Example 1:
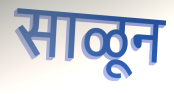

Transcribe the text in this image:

साळून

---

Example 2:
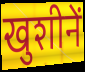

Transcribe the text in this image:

खुशीनें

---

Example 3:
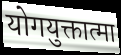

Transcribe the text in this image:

योगयुक्तात्मा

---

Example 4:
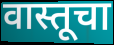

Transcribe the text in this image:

वास्तूचा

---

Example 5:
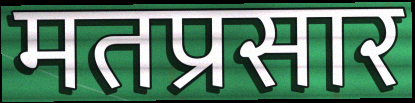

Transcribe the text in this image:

मतप्रसार